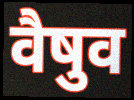
वैषुव